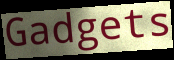
Gadgets